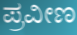
ಪ್ರವೀಣ